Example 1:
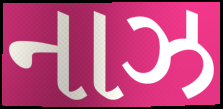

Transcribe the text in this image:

નાઝ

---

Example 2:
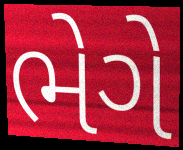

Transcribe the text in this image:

ભેગે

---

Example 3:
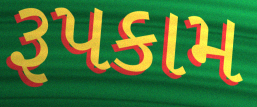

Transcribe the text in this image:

રૂપકામ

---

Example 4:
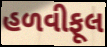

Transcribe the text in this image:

હળવીફૂલ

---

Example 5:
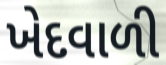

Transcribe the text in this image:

ખેદવાળી